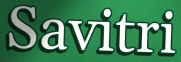
Savitri